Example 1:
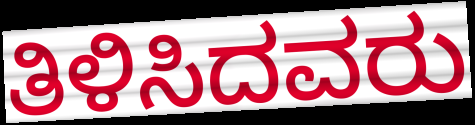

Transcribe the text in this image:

ತಿಳಿಸಿದವರು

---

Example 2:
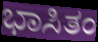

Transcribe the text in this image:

ಭಾಸಿತಂ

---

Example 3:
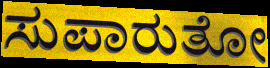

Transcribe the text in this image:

ಸುಪಾರುತೋ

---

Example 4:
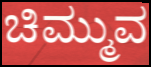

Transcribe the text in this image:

ಚಿಮ್ಮುವ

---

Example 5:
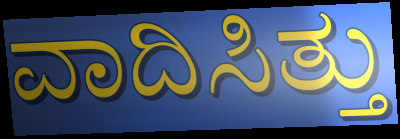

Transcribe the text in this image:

ವಾದಿಸಿತ್ತು